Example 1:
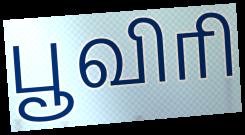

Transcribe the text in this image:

பூவிரி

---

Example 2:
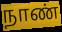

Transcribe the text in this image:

நாண்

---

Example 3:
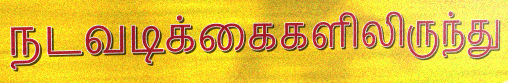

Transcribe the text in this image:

நடவடிக்கைகளிலிருந்து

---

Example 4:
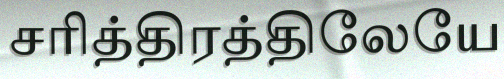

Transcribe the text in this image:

சரித்திரத்திலேயே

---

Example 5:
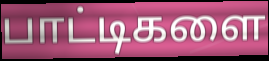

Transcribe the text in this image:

பாட்டிகளை